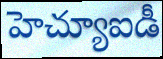
హెచ్యూఐడీ